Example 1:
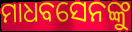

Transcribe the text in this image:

ମାଧବସେନଙ୍କୁ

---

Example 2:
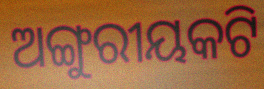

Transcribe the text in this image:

ଅଙ୍ଗୁରୀୟକଟି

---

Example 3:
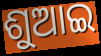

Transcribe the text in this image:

ଶୁଆଇ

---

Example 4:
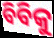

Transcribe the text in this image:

ବିବିକୁ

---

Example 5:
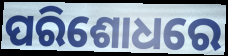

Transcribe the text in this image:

ପରିଶୋଧରେ